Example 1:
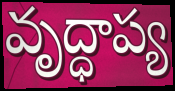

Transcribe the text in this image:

వృద్ధాప్య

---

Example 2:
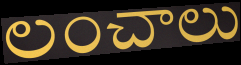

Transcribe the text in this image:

లంచాలు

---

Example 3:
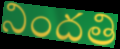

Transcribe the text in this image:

నిందతి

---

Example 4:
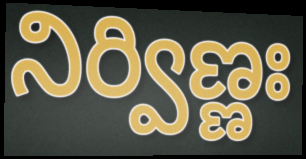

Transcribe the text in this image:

నిర్విణ్ణః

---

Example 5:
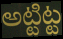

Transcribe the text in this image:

అట్టిట్ట